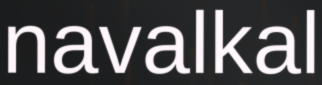
navalkal